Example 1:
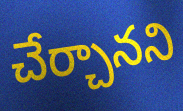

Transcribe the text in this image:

చేర్చానని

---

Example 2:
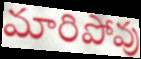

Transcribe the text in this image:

మారిపోవు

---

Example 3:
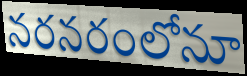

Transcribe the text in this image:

నరనరంలోనూ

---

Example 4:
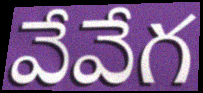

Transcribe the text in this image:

వేవేగ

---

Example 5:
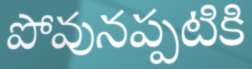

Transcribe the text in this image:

పోవునప్పటికి